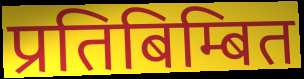
प्रतिबिम्बित